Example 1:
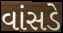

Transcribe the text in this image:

વાંસડે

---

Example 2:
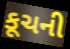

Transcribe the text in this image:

કૂચની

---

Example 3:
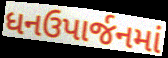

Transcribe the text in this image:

ધનઉપાર્જનમાં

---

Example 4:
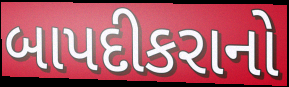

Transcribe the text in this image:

બાપદીકરાનો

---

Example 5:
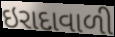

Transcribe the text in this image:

ઇરાદાવાળી